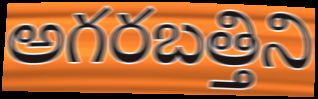
అగరబత్తిని